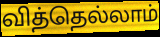
வித்தெல்லாம்